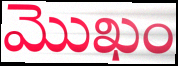
మొఖం